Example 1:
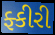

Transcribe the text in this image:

ફ્કીરી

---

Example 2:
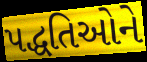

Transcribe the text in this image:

પદ્ધતિઓને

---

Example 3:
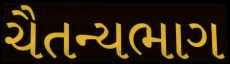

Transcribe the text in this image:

ચૈતન્યભાગ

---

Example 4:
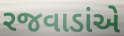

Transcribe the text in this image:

રજવાડાંએ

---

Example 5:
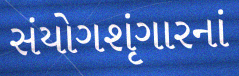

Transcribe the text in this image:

સંયોગશૃંગારનાં